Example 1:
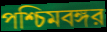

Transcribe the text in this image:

পশ্চিমবঙ্গর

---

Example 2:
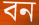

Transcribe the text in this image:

বন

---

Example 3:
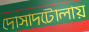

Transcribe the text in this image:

দোসাদটোলায়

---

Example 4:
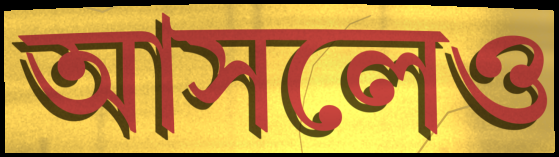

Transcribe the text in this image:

আসলেও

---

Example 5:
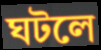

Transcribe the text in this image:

ঘটলে